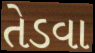
તેડવા